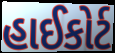
હાઈકોર્ટ